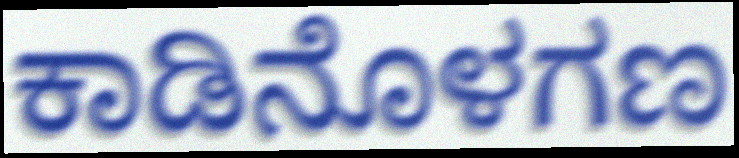
ಕಾಡಿನೊಳಗಣ